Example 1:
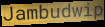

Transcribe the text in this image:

Jambudwip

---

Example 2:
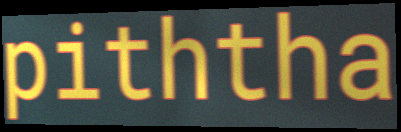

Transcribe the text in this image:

piththa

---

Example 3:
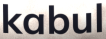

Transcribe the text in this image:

kabul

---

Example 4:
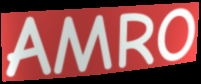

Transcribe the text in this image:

AMRO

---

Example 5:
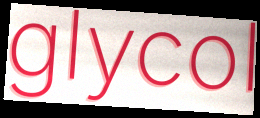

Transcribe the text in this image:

glycol